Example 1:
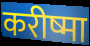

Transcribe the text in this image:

करीष्मा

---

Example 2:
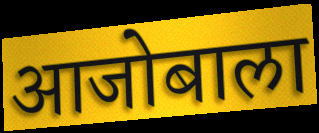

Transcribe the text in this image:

आजोबाला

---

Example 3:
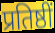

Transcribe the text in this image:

प्रतिष्ठीं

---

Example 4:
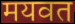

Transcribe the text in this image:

मयवत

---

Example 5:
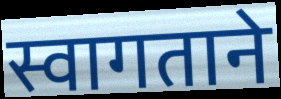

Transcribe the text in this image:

स्वागताने